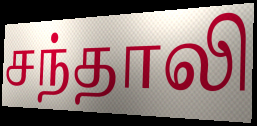
சந்தாலி